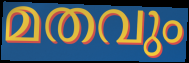
മതവും